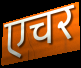
एचर